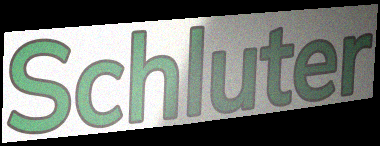
Schluter